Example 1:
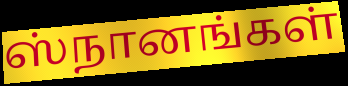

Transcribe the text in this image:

ஸ்நானங்கள்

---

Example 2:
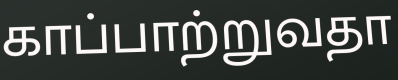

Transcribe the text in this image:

காப்பாற்றுவதா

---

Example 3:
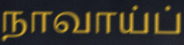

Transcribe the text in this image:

நாவாய்ப்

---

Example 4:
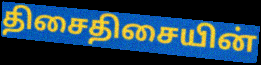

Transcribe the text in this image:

திசைதிசையின்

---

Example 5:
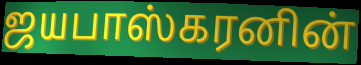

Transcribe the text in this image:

ஜயபாஸ்கரனின்